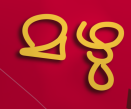
മഴു